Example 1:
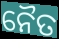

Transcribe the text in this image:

ନୈତ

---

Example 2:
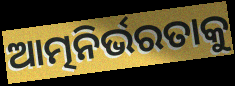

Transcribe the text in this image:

ଆତ୍ମନିର୍ଭରତାକୁ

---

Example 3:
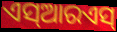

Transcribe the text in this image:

ଏସ୍ଆରଏସ୍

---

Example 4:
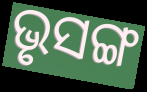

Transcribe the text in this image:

ଭୃସଙ୍ଗ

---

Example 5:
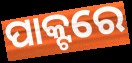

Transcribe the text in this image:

ପାକ୍ଟରେ